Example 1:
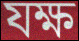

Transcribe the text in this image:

যক্ষ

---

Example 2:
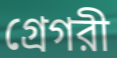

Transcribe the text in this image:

গ্রেগরী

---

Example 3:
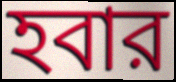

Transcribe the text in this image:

হবার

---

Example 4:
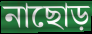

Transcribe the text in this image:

নাছোড়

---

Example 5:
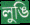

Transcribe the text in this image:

লুঙি